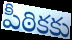
పీఠికకు